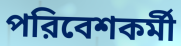
পরিবেশকর্মী